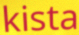
kista